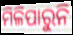
ମିଳିପାରୁନି